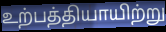
உற்பத்தியாயிற்று